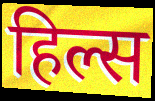
हिल्स